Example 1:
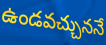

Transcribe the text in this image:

ఉండవచ్చుననే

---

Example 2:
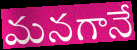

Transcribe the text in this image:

మనగానే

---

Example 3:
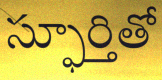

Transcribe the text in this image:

స్ఫూర్తితో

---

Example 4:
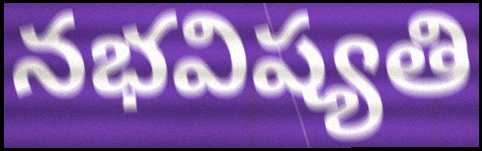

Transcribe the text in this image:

నభవిష్యతి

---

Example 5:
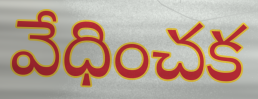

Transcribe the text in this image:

వేధించక